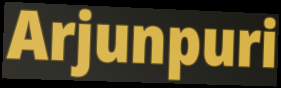
Arjunpuri